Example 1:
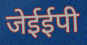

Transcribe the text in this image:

जेईईपी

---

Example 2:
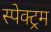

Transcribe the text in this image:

स्पेक्ट्रम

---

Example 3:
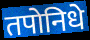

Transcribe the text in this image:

तपोनिधे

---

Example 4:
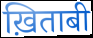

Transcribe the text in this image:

ख़िताबी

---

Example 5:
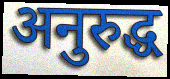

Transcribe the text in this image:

अनुरुद्ध